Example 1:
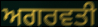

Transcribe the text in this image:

ਅਗਰਵਤੀ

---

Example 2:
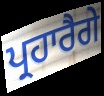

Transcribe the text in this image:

ਪ੍ਰਹਾਰੈਗੇ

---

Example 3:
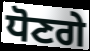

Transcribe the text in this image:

ਧੋਣਗੇ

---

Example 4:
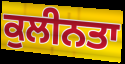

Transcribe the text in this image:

ਕੁਲੀਨਤਾ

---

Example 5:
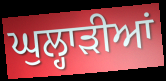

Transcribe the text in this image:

ਘੁਲ੍ਹਾੜੀਆਂ